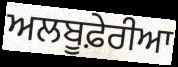
ਅਲਬੂਫ਼ੇਰੀਆ